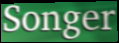
Songer